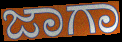
ಜಾಗಾ